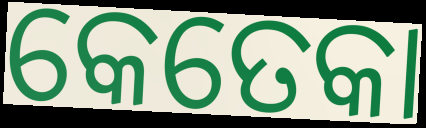
କେତେକା